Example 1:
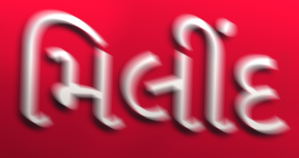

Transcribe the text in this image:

મિલીંદ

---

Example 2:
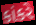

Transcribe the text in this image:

કાંકરે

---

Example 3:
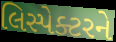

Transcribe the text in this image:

લિસ્પેક્ટરને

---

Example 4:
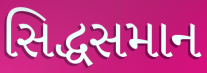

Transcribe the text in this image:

સિદ્ધસમાન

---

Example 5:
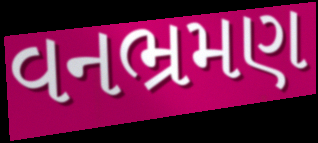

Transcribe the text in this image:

વનભ્રમણ